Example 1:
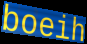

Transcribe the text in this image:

boeih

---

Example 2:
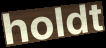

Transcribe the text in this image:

holdt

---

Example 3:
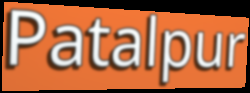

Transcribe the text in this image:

Patalpur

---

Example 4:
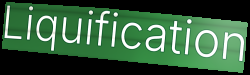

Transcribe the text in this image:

Liquification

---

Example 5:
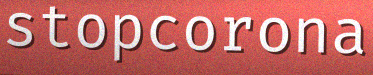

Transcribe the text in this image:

stopcorona